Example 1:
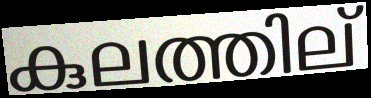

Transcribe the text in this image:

കുലത്തില്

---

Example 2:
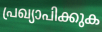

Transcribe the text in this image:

പ്രഖ്യാപിക്കുക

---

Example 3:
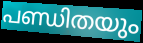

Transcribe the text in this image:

പണ്ഡിതയും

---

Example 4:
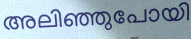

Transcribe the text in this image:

അലിഞ്ഞുപോയി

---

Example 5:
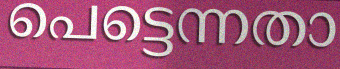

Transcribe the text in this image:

പെട്ടെന്നതാ